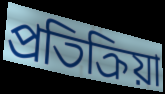
প্রতিক্রিয়া